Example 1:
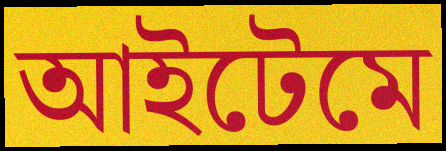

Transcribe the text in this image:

আইটেমে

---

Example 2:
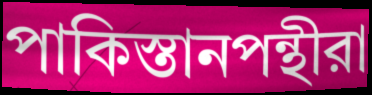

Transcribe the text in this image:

পাকিস্তানপন্থীরা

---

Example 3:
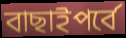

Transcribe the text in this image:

বাছাইপর্বে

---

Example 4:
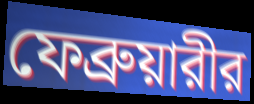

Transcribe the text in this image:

ফেব্রুয়ারীর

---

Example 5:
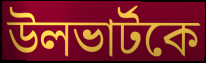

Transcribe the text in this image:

উলভার্টকে